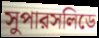
সুপারসলিডে